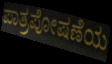
ಪಾತ್ರಪೋಷಣೆಯ